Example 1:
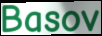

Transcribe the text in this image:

Basov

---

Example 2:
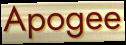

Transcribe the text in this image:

Apogee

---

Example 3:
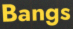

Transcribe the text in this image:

Bangs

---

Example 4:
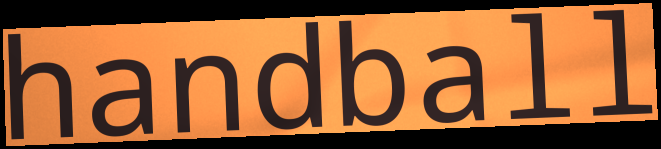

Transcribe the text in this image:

handball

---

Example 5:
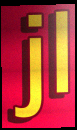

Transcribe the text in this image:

jl